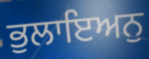
ਭੁਲਾਇਅਨੁ